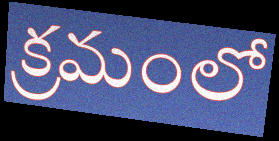
క్రమంలో